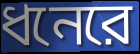
ধনেরে